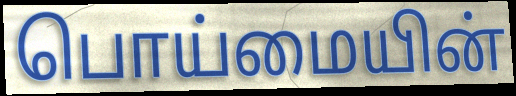
பொய்மையின்